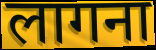
लागना